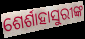
ଶେର୍ଶାହାସୁରୀଙ୍କ